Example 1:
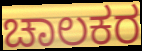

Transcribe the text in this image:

ಚಾಲಕರ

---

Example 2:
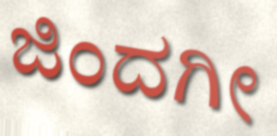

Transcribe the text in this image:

ಜಿಂದಗೀ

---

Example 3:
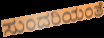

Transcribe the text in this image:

ಸುಂದರಿಯಂತೆ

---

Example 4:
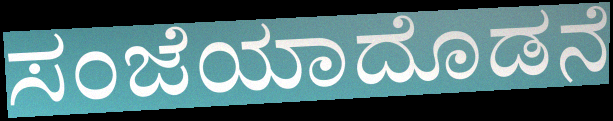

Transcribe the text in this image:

ಸಂಜೆಯಾದೊಡನೆ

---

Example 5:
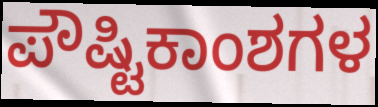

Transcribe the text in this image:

ಪೌಷ್ಟಿಕಾಂಶಗಳ